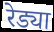
रेड्या